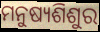
ମନୁଷ୍ୟଶିଶୁର